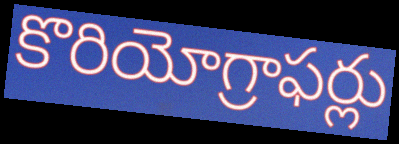
కొరియోగ్రాఫర్లు